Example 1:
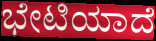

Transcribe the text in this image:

ಭೇಟಿಯಾದೆ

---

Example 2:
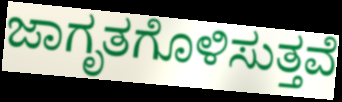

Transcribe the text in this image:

ಜಾಗೃತಗೊಳಿಸುತ್ತವೆ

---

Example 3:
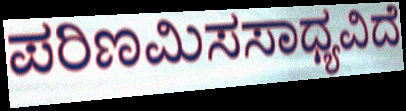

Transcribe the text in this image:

ಪರಿಣಮಿಸಸಾಧ್ಯವಿದೆ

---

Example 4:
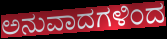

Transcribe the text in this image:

ಅನುವಾದಗಳಿಂದ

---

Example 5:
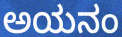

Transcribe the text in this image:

ಅಯನಂ